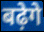
बढ़ेगे